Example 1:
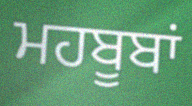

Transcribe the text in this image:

ਮਹਬੂਬਾਂ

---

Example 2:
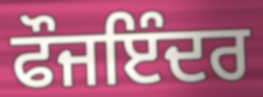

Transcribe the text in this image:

ਫੌਜਇੰਦਰ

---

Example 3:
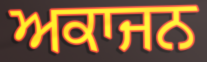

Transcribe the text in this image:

ਅਕਾਜਨ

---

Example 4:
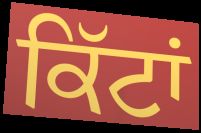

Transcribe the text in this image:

ਕਿੱਟਾਂ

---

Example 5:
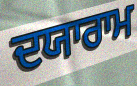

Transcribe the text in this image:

ਦਯਾਰਾਮ